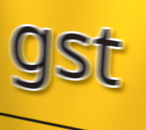
gst